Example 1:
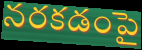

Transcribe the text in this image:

నరకడంపై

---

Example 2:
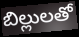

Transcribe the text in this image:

బిల్లులతో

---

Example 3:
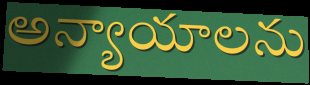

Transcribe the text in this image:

అన్యాయాలను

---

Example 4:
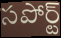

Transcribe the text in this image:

సపోర్ట్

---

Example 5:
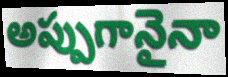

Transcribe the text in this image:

అప్పుగానైనా